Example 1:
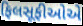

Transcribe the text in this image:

ફિલસૂફીઓએ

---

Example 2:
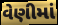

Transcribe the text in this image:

વેણીમાં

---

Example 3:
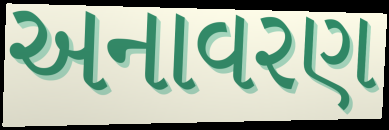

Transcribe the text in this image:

અનાવરણ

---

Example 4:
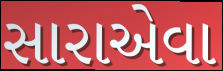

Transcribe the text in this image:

સારાએવા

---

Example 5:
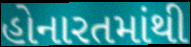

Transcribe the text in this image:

હોનારતમાંથી